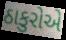
ઠાકુરોએ